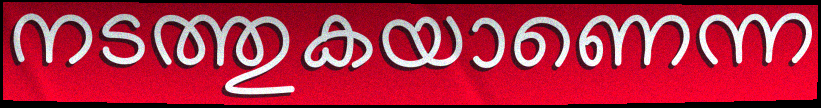
നടത്തുകയാണെന്ന